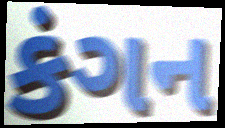
કંગન